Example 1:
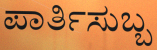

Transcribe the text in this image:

ಪಾರ್ತಿಸುಬ್ಬ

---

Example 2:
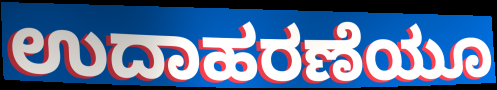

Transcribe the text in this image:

ಉದಾಹರಣೆಯೂ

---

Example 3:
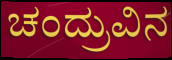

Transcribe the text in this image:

ಚಂದ್ರುವಿನ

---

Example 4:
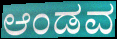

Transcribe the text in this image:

ಆಂಡವ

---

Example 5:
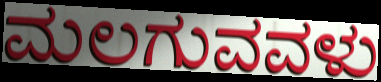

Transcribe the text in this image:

ಮಲಗುವವಳು